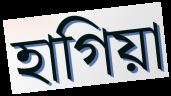
হাগিয়া